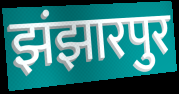
झंझारपुर